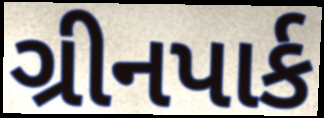
ગ્રીનપાર્ક